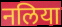
नलिया